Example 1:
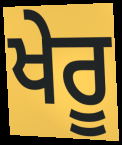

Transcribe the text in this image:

ਖੇਰੂ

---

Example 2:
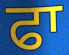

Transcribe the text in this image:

ਫਾ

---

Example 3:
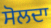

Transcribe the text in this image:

ਸੋਲਦਾ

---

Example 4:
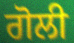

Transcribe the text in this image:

ਗੋਲੀ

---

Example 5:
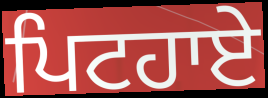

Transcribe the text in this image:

ਪਿਟਹਾਏ